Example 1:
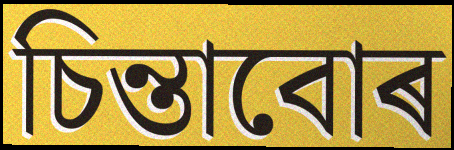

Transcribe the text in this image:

চিন্তাবোৰ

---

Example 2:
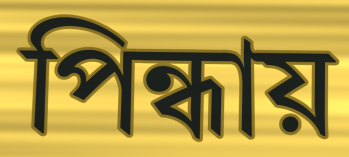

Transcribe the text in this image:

পিন্ধায়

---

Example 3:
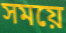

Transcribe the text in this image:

সময়ে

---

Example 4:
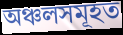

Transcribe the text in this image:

অঞ্চলসমূহত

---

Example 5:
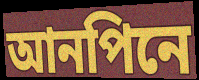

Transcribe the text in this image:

আনপিনে